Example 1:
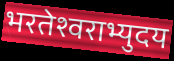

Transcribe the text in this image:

भरतेश्वराभ्युदय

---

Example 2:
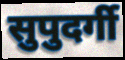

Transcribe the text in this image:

सुपुदर्गी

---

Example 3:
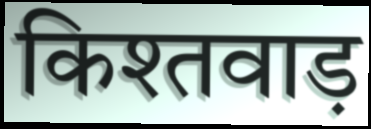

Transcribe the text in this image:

किश्तवाड़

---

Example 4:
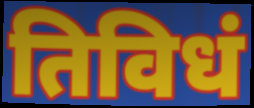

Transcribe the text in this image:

तिविधं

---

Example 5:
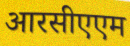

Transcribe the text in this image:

आरसीएएम